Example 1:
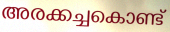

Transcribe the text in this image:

അരക്കച്ചകൊണ്ട്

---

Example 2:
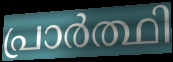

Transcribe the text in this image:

പ്രാർത്ഥി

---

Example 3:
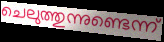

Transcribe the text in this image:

ചെലുത്തുന്നുണ്ടെന്ന്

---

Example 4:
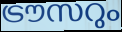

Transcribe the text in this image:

ട്രൗസറും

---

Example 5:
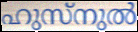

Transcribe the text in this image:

ഹുസ്നുൽ